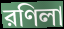
রণিলা